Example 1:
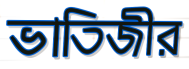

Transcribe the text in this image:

ভাতিজীর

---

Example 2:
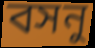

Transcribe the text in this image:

বসনু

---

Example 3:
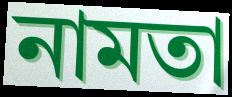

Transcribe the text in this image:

নামতা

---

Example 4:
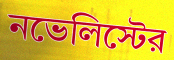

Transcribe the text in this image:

নভেলিস্টের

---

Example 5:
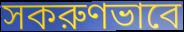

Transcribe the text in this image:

সকরুণভাবে